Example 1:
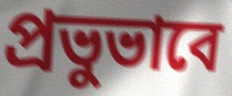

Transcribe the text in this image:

প্রভুভাবে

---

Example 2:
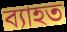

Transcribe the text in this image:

ব্যাহত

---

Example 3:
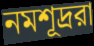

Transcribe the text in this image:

নমশূদ্ররা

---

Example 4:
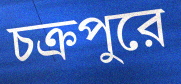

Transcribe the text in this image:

চক্রপুরে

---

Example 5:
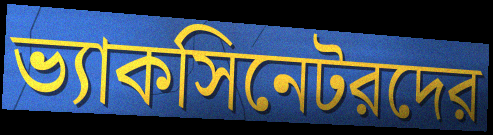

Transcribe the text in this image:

ভ্যাকসিনেটরদের